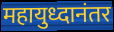
महायुध्दानंतर